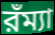
রঁম্যা